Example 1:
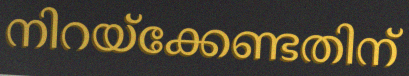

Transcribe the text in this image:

നിറയ്ക്കേണ്ടതിന്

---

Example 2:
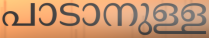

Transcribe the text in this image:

പാടാനുള്ള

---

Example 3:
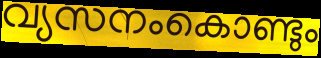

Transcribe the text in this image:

വ്യസനംകൊണ്ടും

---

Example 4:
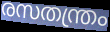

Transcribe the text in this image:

രസതന്ത്രം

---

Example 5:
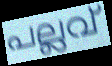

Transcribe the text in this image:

പല്ലവ്